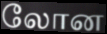
லோன